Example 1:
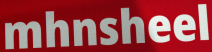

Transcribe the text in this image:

mhnsheel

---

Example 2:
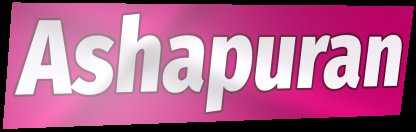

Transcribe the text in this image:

Ashapuran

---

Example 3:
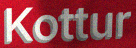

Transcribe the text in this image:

Kottur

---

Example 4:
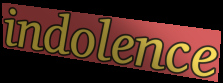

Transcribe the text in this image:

indolence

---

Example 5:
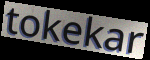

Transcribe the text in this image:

tokekar